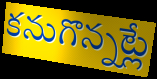
కనుగొన్నట్లే